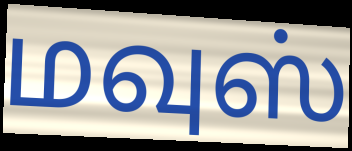
மவுஸ்